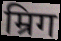
म्रिग